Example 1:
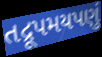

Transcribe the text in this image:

તદ્રૂપમયપણું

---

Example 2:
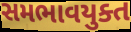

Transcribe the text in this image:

સમભાવયુક્ત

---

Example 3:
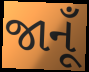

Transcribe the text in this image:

જાનૂઁ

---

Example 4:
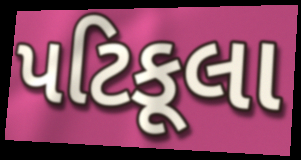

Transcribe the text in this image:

પટિકૂલા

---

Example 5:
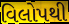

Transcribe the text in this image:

વિલોપથી